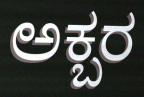
ಅಕ್ಬರ